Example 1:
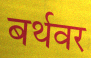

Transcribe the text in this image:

बर्थवर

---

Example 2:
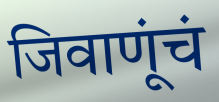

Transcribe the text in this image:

जिवाणूंचं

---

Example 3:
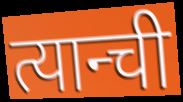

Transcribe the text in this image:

त्यान्ची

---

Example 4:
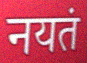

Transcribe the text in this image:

नयतं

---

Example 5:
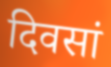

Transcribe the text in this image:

दिवसां